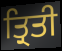
ਤ੍ਰਿਤੀ